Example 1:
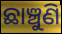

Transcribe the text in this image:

ଛାଞ୍ଚୁଣି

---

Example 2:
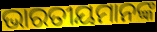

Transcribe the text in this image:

ଭାରତୀୟମାନଙ୍କ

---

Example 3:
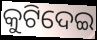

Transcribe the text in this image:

କୁଟିଦେଇ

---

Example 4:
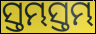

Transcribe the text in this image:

ସ୍ତମ୍ଭସ୍ତମ୍ଭ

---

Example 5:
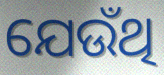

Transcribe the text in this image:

ଯେଉଁଥି